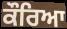
ਕੌਰਿਆ